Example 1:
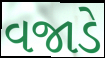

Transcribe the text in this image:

વજાડે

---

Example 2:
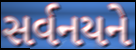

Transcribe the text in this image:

સર્વનયને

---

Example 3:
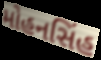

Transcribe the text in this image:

મોહનસિંહ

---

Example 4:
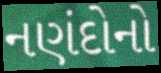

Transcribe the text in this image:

નણંદોનો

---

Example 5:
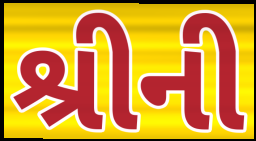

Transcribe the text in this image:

શ્રીની